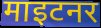
माइटनर